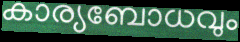
കാര്യബോധവും